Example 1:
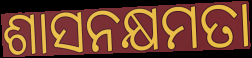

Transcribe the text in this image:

ଶାସନକ୍ଷମତା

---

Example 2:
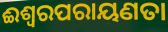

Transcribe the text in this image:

ଈଶ୍ୱରପରାୟଣତା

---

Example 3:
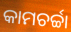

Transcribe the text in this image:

କାମଚର୍ଚ୍ଚା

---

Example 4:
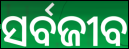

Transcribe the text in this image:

ସର୍ବଜୀବ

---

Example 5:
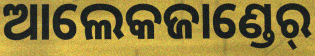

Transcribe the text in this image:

ଆଲେକଜାଣ୍ଡେର୍